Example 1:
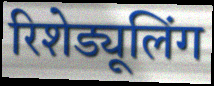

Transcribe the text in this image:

रिशेड्यूलिंग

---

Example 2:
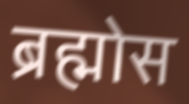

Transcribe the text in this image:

ब्रह्मोस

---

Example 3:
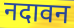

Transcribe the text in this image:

नदावन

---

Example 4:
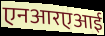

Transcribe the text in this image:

एनआरएआई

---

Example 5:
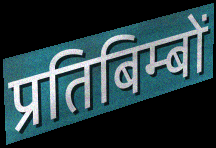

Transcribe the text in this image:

प्रतिबिम्बों